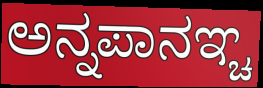
ಅನ್ನಪಾನಞ್ಚ